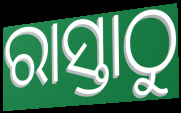
ରାସ୍ତାଠୁ